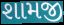
શામજી